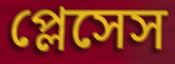
প্লেসেস